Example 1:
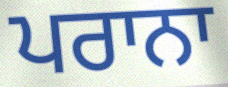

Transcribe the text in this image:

ਪਰਾਨਾ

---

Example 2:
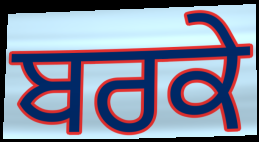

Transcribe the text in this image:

ਬਰਕੇ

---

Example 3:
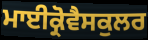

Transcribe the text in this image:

ਮਾਈਕ੍ਰੋਵੈਸਕੁਲਰ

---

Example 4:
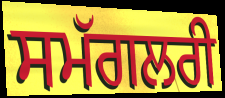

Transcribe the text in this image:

ਸਮੱਗਲਰੀ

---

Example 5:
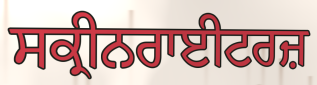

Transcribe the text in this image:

ਸਕ੍ਰੀਨਰਾਈਟਰਜ਼